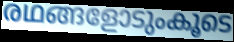
രഥങ്ങളോടുംകൂടെ